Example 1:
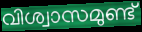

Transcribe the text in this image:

വിശ്വാസമുണ്ട്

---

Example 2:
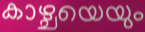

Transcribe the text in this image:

കാഴ്ചയെയും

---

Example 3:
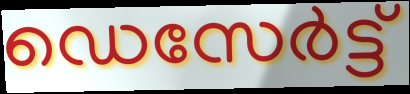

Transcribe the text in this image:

ഡെസേർട്ട്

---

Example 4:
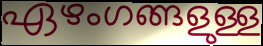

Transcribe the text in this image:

ഏഴംഗങ്ങളുള്ള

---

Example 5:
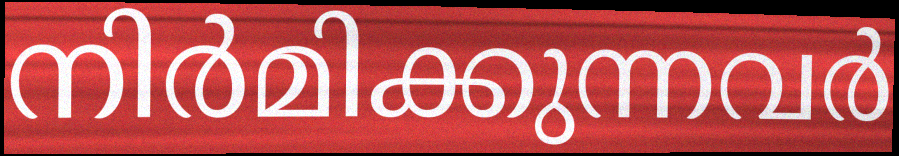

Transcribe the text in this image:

നിർമിക്കുന്നവർ